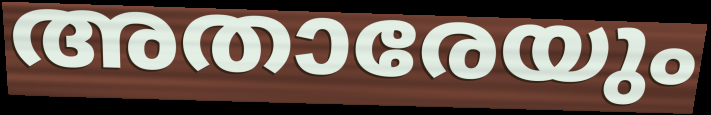
അതാരേയും